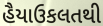
હૈયાઉકલતથી